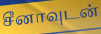
சீனாவுடன்